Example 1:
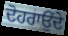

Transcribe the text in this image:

ਦੋਹਰਾਉਂਦੇ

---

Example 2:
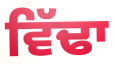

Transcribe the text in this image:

ਵਿੱਢਾ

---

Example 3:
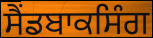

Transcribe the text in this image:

ਸੈਂਡਬਾਕਸਿੰਗ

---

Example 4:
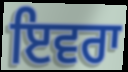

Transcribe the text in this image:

ਇਵਰਾ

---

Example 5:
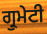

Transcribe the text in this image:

ਗ੍ਰੁਮੇਟੀ